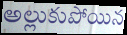
అల్లుకుపోయిన